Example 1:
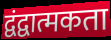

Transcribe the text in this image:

द्वंद्वात्मकता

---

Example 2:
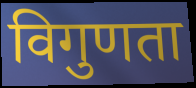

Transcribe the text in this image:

विगुणता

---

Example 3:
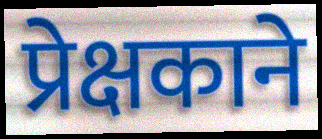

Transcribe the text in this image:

प्रेक्षकाने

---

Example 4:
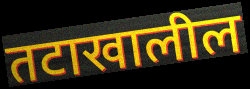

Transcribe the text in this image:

तटाखालील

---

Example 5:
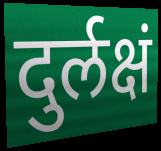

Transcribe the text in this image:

दुर्लक्षं